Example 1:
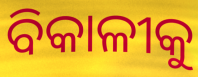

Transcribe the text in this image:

ବିକାଳୀକୁ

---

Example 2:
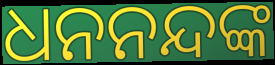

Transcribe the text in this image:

ଧନନନ୍ଦଙ୍କ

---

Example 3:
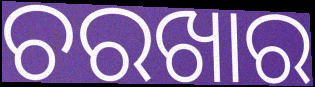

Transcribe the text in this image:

ଚରଖାର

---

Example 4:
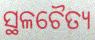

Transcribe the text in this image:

ସ୍ଥଳଚୈତ୍ୟ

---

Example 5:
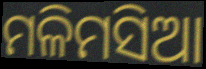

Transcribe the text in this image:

ମଳିମସିଆ